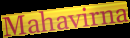
Mahavirna